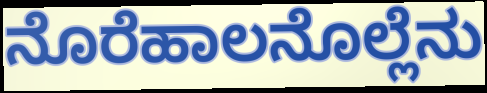
ನೊರೆಹಾಲನೊಲ್ಲೆನು